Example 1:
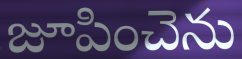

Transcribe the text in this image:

జూపించెను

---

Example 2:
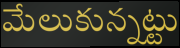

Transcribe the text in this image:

మేలుకున్నట్టు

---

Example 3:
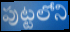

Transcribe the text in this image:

పుట్టలోని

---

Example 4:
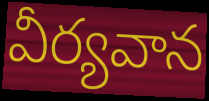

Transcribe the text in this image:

వీర్యవాన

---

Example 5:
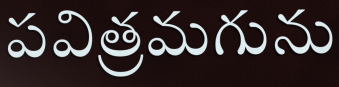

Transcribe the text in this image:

పవిత్రమగును